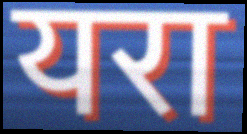
यरा